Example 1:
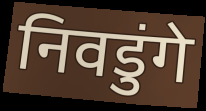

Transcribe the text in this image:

निवडुंगे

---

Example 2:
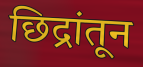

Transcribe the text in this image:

छिद्रांतून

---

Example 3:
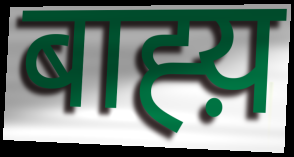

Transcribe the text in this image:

बाह्य़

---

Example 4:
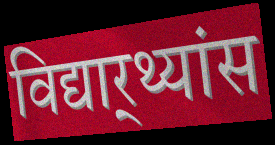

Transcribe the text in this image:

विद्यार्थ्यांस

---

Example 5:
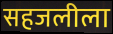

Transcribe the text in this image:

सहजलीला